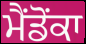
ਮੈਂਡੋਂਕਾ